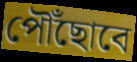
পৌঁছোবে